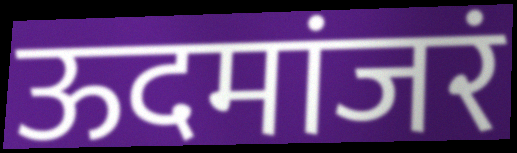
ऊदमांजरं